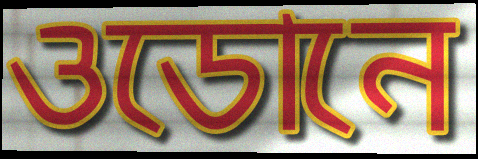
ওডোনে